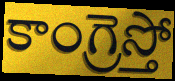
కాంగ్రెస్తో